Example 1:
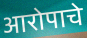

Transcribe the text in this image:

आरोपाचे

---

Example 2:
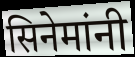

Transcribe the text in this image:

सिनेमांनी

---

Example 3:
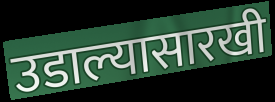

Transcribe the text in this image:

उडाल्यासारखी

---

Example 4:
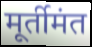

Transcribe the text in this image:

मूर्तीमंत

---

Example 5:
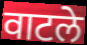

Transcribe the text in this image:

वाटले